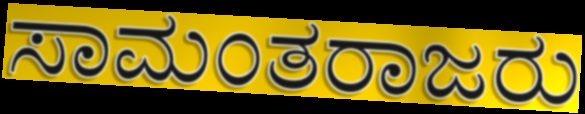
ಸಾಮಂತರಾಜರು